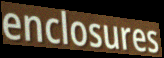
enclosures